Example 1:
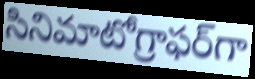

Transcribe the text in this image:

సినిమాటోగ్రాఫర్‌గా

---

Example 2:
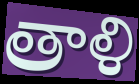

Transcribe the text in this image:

తాళి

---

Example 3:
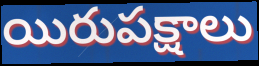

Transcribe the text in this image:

యిరుపక్షాలు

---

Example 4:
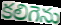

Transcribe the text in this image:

కలిగెను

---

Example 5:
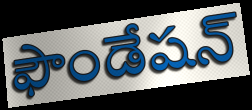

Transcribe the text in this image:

ఫౌండేషన్